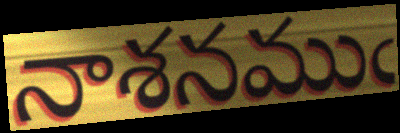
నాశనముఁ